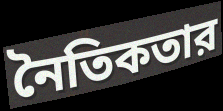
নৈতিকতার